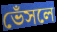
ভেঁসলে